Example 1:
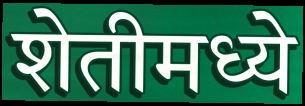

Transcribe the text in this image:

शेतीमध्ये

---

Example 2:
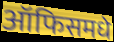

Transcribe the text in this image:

ऑफिसमधे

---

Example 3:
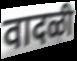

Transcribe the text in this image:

वादळी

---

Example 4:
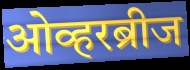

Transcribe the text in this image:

ओव्हरब्रीज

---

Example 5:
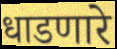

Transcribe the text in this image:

धाडणारे